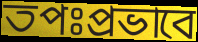
তপঃপ্রভাবে